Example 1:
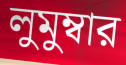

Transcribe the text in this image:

লুমুম্বার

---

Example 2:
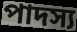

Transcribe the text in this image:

পাদস্য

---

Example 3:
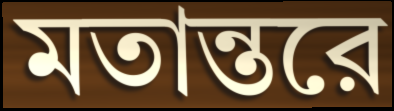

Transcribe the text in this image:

মতান্তরে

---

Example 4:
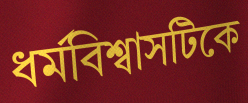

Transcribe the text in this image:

ধর্মবিশ্বাসটিকে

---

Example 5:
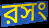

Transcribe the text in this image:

রসং